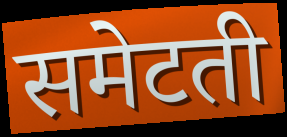
समेटती